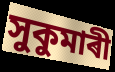
সুকুমাৰী